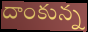
దాంకున్న